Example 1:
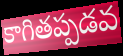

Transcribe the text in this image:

కాగితప్పడవ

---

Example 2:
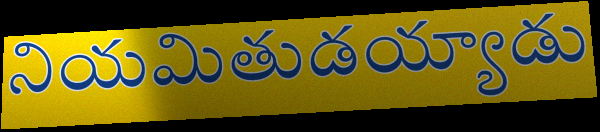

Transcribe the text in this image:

నియమితుడయ్యాడు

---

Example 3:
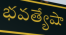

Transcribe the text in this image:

భవత్యేషా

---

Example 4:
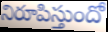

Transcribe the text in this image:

నిరూపిస్తుందో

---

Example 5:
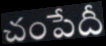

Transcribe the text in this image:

చంపేదీ